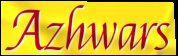
Azhwars